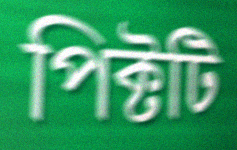
পিক্টটি